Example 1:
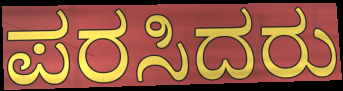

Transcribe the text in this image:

ಪರಸಿದರು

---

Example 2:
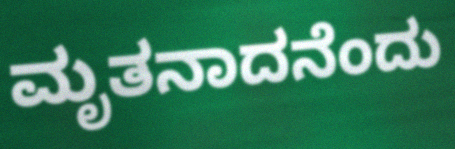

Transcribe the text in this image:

ಮೃತನಾದನೆಂದು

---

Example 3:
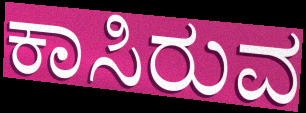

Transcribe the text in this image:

ಕಾಸಿರುವ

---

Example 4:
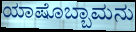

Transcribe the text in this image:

ಯಾಷೊಬ್ಬಾಮನು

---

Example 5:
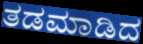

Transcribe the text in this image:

ತಡಮಾಡಿದ